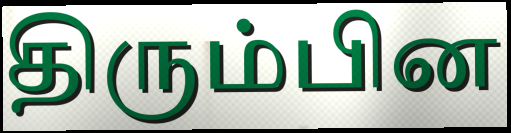
திரும்பின